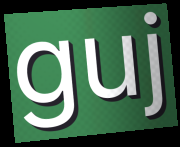
guj